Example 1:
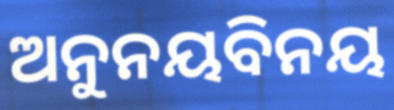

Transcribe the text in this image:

ଅନୁନୟବିନୟ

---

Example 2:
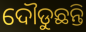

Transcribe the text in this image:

ଦୌଡୁଛନ୍ତି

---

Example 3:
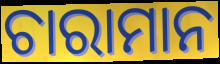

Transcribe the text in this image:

ଚାରାମାନ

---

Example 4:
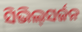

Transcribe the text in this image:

ସିଭିଲ୍‌ସର୍ଜନ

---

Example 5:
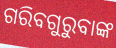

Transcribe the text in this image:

ଗରିବଗୁରୁବାଙ୍କ